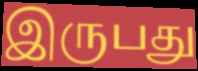
இருபது